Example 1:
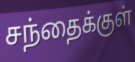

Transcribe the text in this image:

சந்தைக்குள்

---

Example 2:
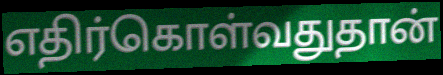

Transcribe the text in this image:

எதிர்கொள்வதுதான்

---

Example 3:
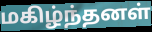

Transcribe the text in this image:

மகிழ்ந்தனள்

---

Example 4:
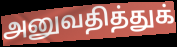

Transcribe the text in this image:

அனுவதித்துக்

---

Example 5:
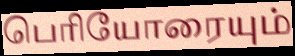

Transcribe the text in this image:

பெரியோரையும்